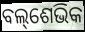
ବଲ୍‌ଶେଭିକ